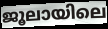
ജൂലായിലെ